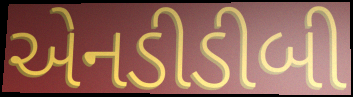
એનડીડીબી